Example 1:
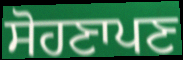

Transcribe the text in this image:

ਸੋਹਣਾਪਣ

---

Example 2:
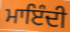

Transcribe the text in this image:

ਮਾਇੰਦੀ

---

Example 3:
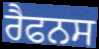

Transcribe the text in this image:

ਰੈਫਨਸ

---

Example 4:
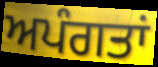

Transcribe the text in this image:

ਅਪੰਗਤਾਂ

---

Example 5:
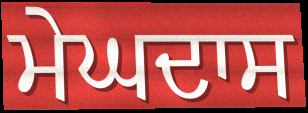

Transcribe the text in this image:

ਮੇਘਦਾਸ